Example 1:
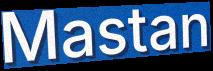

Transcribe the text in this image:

Mastan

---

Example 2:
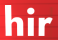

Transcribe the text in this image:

hir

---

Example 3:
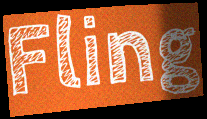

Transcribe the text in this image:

Fling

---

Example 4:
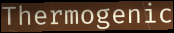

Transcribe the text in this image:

Thermogenic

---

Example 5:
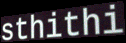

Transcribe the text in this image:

sthithi